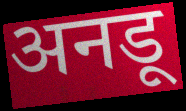
अनडू